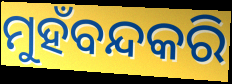
ମୁହଁବନ୍ଦକରି